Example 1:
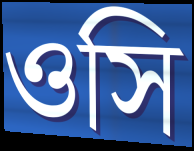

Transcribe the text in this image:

ওসি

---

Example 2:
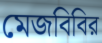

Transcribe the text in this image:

মেজবিবির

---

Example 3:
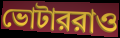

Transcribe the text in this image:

ভোটাররাও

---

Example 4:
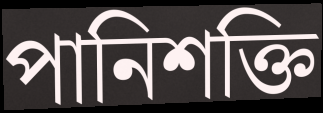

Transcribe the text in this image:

পানিশক্তি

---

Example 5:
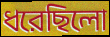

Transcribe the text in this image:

ধরেছিলো